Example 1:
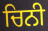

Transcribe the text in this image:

ਚਿਨੀ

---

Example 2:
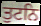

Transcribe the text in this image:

ਤੁਟਨਿ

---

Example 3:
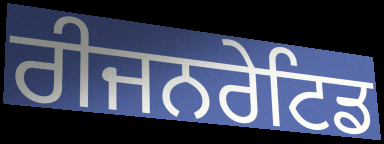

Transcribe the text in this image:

ਰੀਜਨਰੇਟਿਡ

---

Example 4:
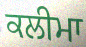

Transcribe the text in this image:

ਕਲੀਮਾ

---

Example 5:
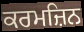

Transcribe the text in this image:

ਕਰਮਜ਼ਿਨ